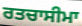
ਰਤਚਾਸੀਮਾ